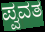
ಪ್ವವತ